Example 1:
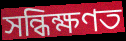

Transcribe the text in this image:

সন্ধিক্ষণত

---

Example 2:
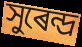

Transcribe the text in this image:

সুৰেন্দ্ৰ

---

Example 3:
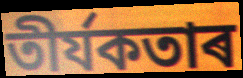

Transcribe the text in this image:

তীৰ্যকতাৰ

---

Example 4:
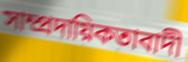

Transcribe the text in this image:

সাম্প্ৰদায়িকতাবাদী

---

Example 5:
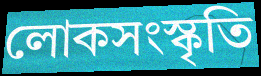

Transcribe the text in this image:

লোকসংস্কৃতি